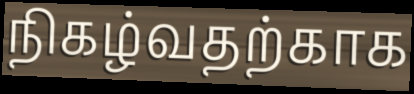
நிகழ்வதற்காக